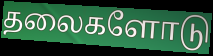
தலைகளோடு